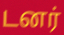
டனர்